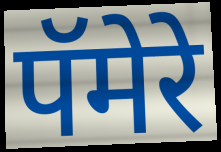
पॅमेरे